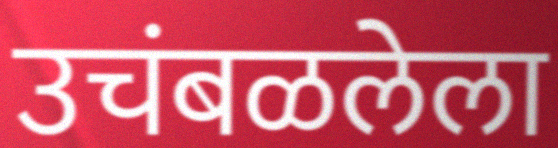
उचंबळलेला